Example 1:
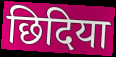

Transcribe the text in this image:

छिदिया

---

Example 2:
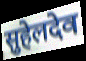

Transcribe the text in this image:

सुहेलदेव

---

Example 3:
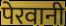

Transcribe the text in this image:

पेरवानी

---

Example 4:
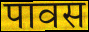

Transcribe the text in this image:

पावस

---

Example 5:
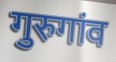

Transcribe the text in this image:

गुरुगांव